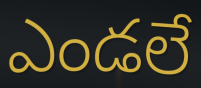
ఎండలే